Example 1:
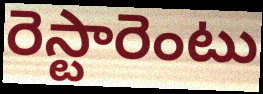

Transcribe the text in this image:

రెస్టారెంటు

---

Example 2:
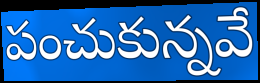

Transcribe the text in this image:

పంచుకున్నవే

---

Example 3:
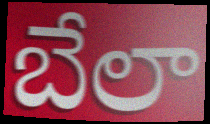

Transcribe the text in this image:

బేలా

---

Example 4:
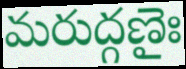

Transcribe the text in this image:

మరుద్గణైః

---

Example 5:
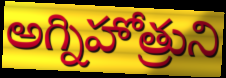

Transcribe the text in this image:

అగ్నిహోత్రుని